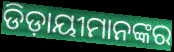
ଡିଡ଼ାୟୀମାନଙ୍କର